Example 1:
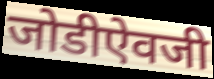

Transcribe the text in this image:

जोडीऐवजी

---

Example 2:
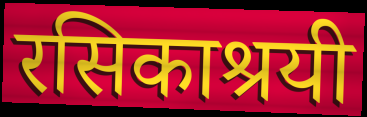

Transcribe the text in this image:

रसिकाश्रयी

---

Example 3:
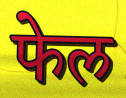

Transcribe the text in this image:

फेल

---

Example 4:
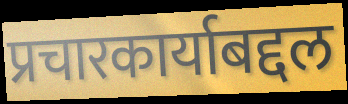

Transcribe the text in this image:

प्रचारकार्याबद्दल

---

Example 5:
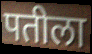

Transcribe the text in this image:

पतीला